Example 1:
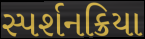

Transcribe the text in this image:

સ્પર્શનક્રિયા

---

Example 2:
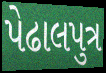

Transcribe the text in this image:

પેઢાલપુત્ર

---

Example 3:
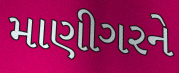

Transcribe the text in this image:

માણીગરને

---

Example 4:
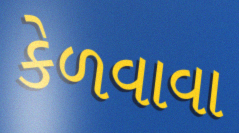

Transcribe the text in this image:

કેળવાવા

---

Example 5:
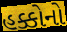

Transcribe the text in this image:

હક્કોનો